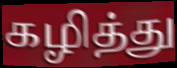
கழித்து